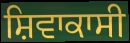
ਸ਼ਿਵਾਕਾਸੀ